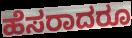
ಹೆಸರಾದರೂ